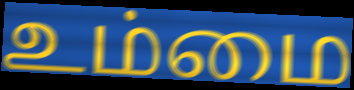
உம்மை